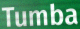
Tumba